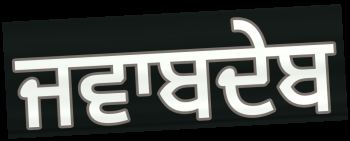
ਜਵਾਬਦੇਬ